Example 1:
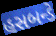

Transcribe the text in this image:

હસબન્ડે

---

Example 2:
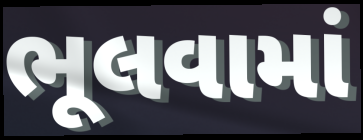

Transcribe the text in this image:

ભૂલવામાં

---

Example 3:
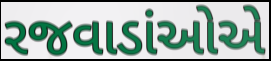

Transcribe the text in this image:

રજવાડાંઓએ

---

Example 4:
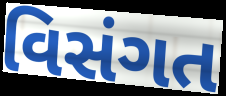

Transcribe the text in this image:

વિસંગત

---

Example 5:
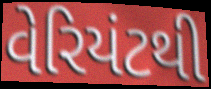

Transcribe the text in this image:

વેરિયંટથી